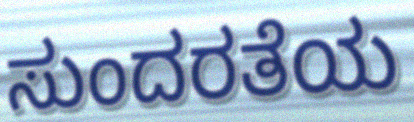
ಸುಂದರತೆಯ